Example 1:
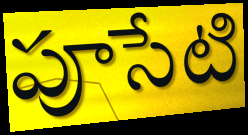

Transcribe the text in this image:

పూసేటి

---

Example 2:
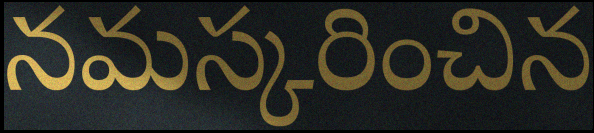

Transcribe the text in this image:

నమస్కరించిన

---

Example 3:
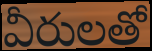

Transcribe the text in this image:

వీరులతో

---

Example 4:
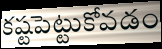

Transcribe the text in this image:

కష్టపెట్టుకోవడం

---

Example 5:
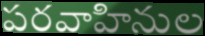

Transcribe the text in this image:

పరవాహినుల